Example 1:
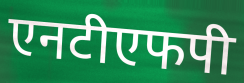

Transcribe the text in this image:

एनटीएफपी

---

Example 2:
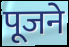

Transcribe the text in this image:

पूजने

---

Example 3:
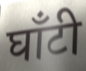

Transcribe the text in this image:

घाँटी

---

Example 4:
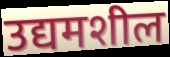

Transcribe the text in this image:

उद्यमशील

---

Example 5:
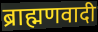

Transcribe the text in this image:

ब्राह्मणवादी